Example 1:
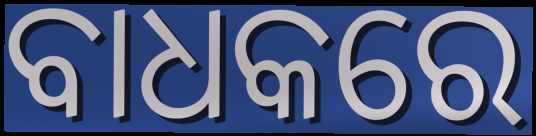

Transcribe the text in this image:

ବାଧକରେ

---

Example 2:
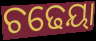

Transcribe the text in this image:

ଚଢେୟା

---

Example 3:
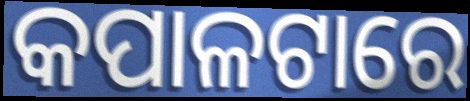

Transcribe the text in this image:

କପାଳଟାରେ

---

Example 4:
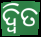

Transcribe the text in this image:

ଦ୍ବିତ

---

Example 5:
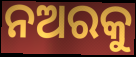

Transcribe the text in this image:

ନଅରକୁ